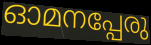
ഓമനപ്പേരു